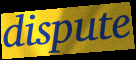
dispute